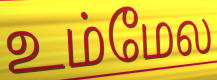
உம்மேல